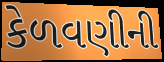
કેળવણીની